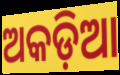
ଅକଡ଼ିଆ